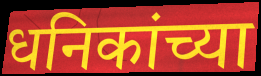
धनिकांच्या